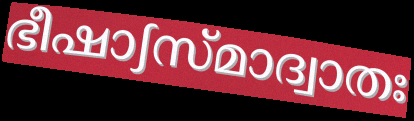
ഭീഷാഽസ്മാദ്വാതഃ